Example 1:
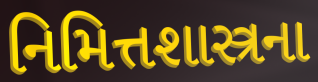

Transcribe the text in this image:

નિમિત્તશાસ્ત્રના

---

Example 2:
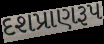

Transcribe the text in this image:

દશપ્રાણરૂપ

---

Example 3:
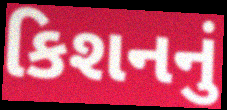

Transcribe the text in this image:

કિશનનું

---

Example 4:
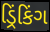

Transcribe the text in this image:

ડ્રિંકિંગ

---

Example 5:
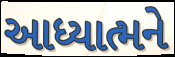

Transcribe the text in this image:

આધ્યાત્મને